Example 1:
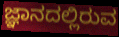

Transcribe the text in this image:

ಜ್ಞಾನದಲ್ಲಿರುವ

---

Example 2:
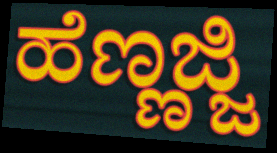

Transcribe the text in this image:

ಹೆಣ್ಣಜ್ಜಿ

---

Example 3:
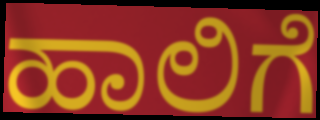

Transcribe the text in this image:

ಹಾಲಿಗೆ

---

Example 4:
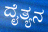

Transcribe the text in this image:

ದೈತ್ಯನ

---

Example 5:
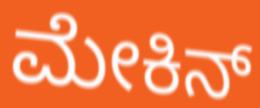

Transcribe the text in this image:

ಮೇಕಿನ್